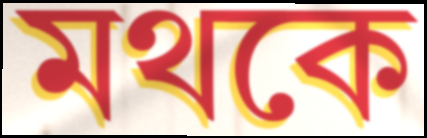
মথকে